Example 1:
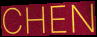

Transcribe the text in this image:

CHEN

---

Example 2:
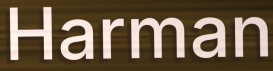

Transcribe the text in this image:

Harman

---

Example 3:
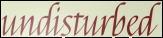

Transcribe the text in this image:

undisturbed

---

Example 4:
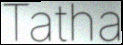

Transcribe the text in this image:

Tatha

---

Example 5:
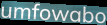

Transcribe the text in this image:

umfowabo